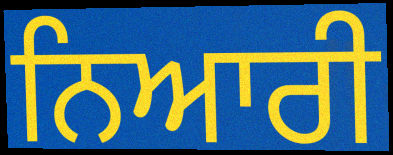
ਨਿਆਰੀ